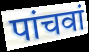
पांचवां